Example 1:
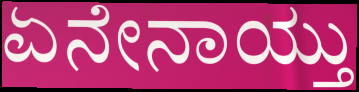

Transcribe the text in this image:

ಏನೇನಾಯ್ತು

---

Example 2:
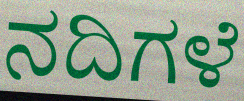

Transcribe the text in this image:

ನದಿಗಳೆ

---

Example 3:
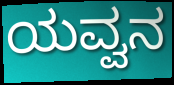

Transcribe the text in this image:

ಯವ್ವನ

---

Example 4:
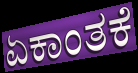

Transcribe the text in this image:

ಏಕಾಂತಕೆ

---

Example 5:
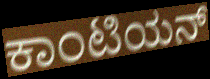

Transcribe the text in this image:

ಕಾಂಟಿಯನ್